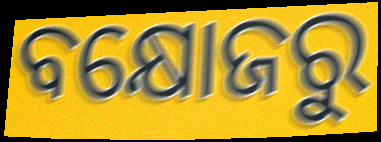
ବକ୍ଷୋଜରୁ